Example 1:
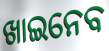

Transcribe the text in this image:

ଖାଇନେବ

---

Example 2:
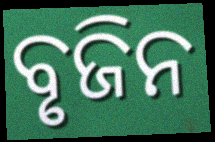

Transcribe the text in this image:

ବୃଜିନ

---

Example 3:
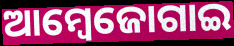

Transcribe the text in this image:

ଆମ୍ବେଜୋଗାଇ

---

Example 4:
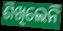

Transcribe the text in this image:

ଶିଖିଲେନି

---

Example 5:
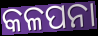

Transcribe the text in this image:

କଳପନା